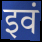
इवं